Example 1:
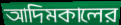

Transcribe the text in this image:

আদিমকালের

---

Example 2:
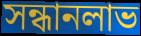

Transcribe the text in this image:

সন্ধানলাভ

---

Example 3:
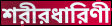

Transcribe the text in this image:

শরীরধারিণী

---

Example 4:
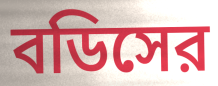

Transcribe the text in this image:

বডিসের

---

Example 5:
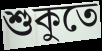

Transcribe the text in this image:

শুকুতে